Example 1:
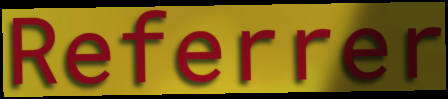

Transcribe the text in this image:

Referrer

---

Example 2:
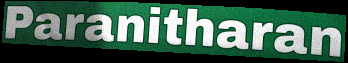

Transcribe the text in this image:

Paranitharan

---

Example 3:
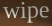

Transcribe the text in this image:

wipe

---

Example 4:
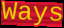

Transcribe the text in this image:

Ways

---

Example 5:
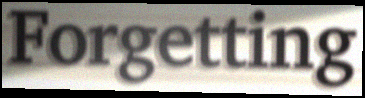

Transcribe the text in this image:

Forgetting